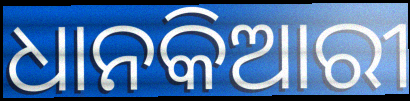
ଧାନକିଆରୀ